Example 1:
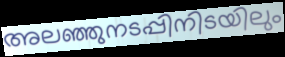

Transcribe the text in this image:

അലഞ്ഞുനടപ്പിനിടയിലും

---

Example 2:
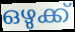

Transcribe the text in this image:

ഒഴുക്ക്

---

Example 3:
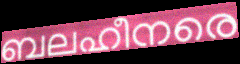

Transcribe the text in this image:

ബലഹീനരെ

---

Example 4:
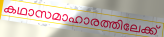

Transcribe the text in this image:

കഥാസമാഹാരത്തിലേക്ക്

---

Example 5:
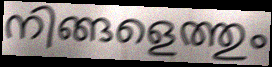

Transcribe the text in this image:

നിങ്ങളെത്തും